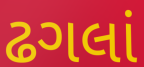
ઢગલાં